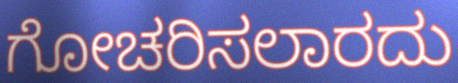
ಗೋಚರಿಸಲಾರದು